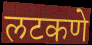
लटकणे